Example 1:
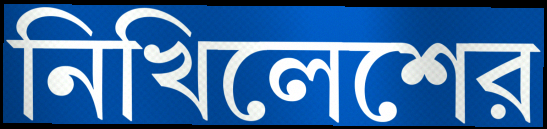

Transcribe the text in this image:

নিখিলেশের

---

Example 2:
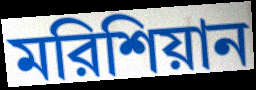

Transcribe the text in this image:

মরিশিয়ান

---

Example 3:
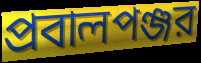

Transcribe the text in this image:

প্রবালপঞ্জর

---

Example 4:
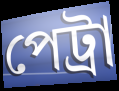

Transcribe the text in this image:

পেট্রা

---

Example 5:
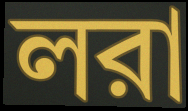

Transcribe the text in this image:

লরা